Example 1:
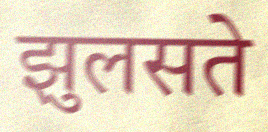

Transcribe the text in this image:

झुलसते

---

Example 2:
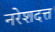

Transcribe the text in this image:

नरेशदत्त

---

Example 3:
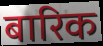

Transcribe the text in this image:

बारिक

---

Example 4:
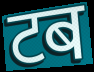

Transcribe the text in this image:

टब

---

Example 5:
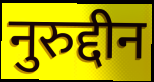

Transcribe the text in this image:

नुरुद्दीन